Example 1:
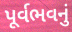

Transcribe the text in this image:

પૂર્વભવનું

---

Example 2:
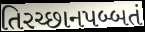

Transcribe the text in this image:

તિરચ્છાનપબ્બતં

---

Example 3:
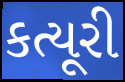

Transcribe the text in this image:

કત્યૂરી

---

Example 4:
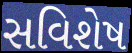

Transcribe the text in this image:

સવિશેષ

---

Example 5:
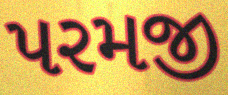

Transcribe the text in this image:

પરમજી